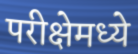
परीक्षेमध्ये